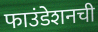
फाउंडेशनची